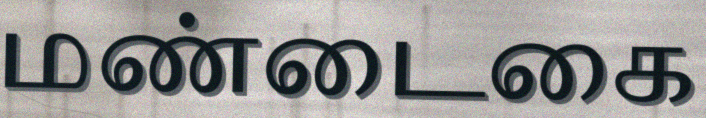
மண்டைகை